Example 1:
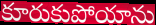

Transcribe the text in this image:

కూరుకుపోయాను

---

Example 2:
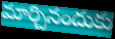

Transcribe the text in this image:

మార్చినందుకు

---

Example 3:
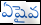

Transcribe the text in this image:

ఏషైవ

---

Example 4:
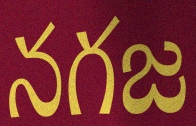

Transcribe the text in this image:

నగజ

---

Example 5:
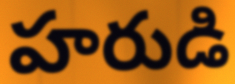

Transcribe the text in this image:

హరుడి